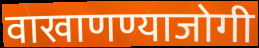
वाखाणण्याजोगी